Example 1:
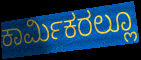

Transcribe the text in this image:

ಕಾರ್ಮಿಕರಲ್ಲೂ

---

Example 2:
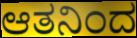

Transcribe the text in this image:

ಆತನಿಂದ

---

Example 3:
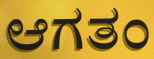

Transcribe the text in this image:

ಆಗತಂ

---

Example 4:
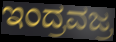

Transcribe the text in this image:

ಇಂದ್ರವಜ್ರ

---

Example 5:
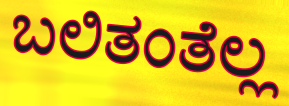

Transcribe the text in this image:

ಬಲಿತಂತೆಲ್ಲ